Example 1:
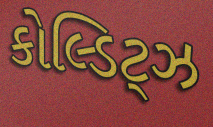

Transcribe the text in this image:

કોલ્ડિટ્ઝ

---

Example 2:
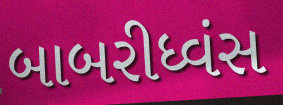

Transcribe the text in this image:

બાબરીધ્વંસ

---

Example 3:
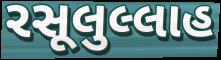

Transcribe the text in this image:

રસૂલુલ્લાહ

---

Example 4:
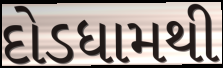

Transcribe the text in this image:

દોડધામથી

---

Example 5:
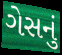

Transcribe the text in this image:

ગેસનું